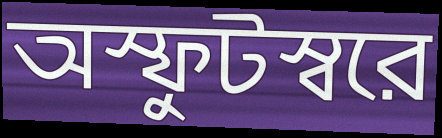
অস্ফুটস্বরে